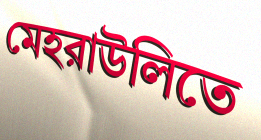
মেহরাউলিতে